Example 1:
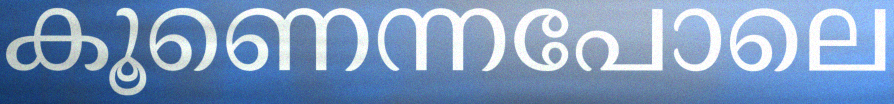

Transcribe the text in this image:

കൂണെന്നപോലെ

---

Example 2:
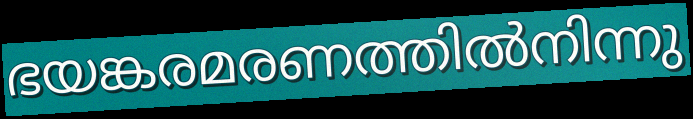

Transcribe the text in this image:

ഭയങ്കരമരണത്തിൽനിന്നു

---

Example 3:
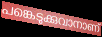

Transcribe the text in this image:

പങ്കെടുക്കുവാനാണ്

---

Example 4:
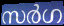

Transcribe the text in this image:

സർഗ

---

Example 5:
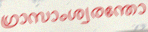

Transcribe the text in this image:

ഗ്രാസാംശ്വരന്തോ